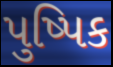
પુષ્પિક